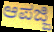
ಆಪಜ್ಜಿ